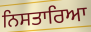
ਨਿਸਤਾਰਿਆ